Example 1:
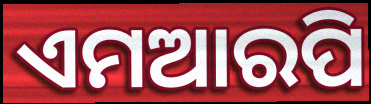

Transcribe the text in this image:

ଏମଆରପି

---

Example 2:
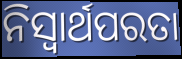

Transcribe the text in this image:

ନିସ୍ଵାର୍ଥପରତା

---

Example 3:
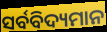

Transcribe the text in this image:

ସର୍ବବିଦ୍ୟମାନ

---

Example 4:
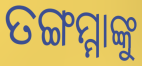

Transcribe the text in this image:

ତଙ୍ଗମ୍ମାଙ୍କୁ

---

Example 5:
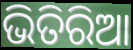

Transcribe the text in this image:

ଭିତିରିଆ